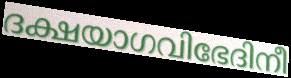
ദക്ഷയാഗവിഭേദിനീ